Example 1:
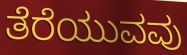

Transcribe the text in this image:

ತೆರೆಯುವವು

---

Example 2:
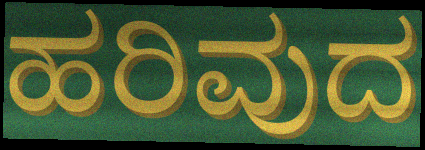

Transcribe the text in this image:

ಹರಿವುದ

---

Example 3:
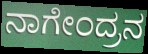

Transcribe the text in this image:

ನಾಗೇಂದ್ರನ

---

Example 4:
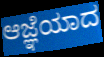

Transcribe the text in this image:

ಆಜ್ಞೆಯಾದ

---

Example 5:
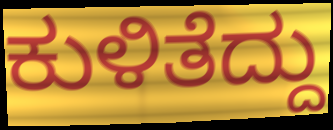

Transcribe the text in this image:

ಕುಳಿತೆದ್ದು